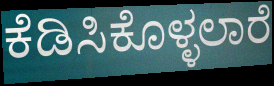
ಕೆಡಿಸಿಕೊಳ್ಳಲಾರೆ